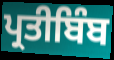
ਪ੍ਰਤੀਬਿੰਬ